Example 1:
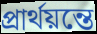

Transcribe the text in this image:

প্রার্থয়ন্তে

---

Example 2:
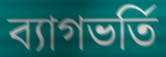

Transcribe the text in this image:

ব্যাগভর্তি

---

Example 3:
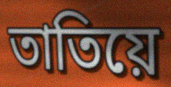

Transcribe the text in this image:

তাতিয়ে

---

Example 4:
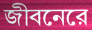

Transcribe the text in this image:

জীবনেরে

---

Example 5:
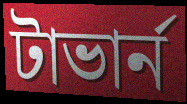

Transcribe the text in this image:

টাভার্ন